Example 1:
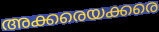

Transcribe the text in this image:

അക്കരെയക്കരെ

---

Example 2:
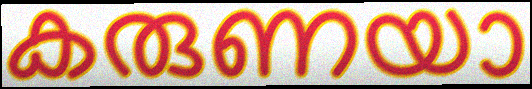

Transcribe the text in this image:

കരുണയാ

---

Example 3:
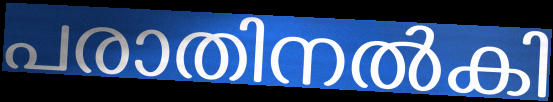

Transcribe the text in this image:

പരാതിനൽകി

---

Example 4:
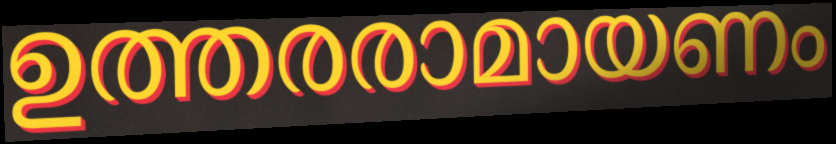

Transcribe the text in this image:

ഉത്തരരാമായണം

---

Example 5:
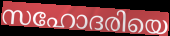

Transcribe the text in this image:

സഹോദരിയെ